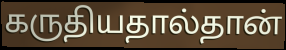
கருதியதால்தான்